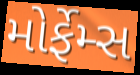
મોર્ફેમ્સ